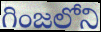
గింజలోని